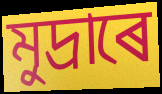
মুদ্ৰাৰে